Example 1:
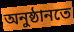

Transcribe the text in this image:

অনুষ্ঠানতে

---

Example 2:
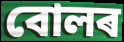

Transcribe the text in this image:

বোলৰ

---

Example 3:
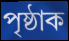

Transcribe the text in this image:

পৃষ্ঠাক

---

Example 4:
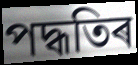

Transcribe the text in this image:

পদ্ধতিৰ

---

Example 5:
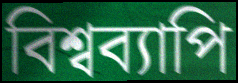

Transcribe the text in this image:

বিশ্বব্যাপি